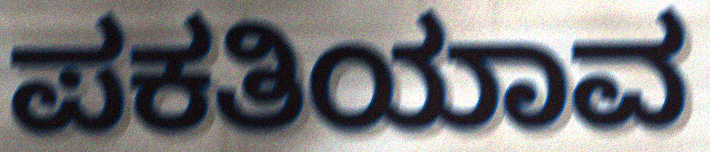
ಪಕತಿಯಾವ